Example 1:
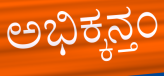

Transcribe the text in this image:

ಅಭಿಕ್ಕನ್ತಂ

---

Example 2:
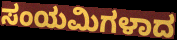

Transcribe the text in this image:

ಸಂಯಮಿಗಳಾದ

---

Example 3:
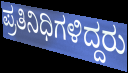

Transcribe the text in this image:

ಪ್ರತಿನಿಧಿಗಳಿದ್ದರು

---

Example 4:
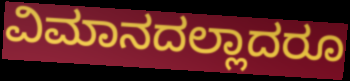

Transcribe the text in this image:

ವಿಮಾನದಲ್ಲಾದರೂ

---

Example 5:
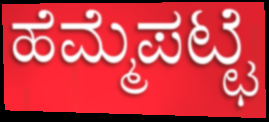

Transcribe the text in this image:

ಹೆಮ್ಮೆಪಟ್ಟೆ